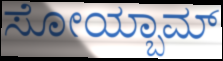
ಸೋಯ್ಬಾಮ್